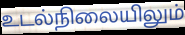
உடல்நிலையிலும்